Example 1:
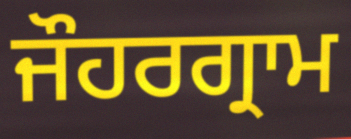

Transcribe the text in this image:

ਜੌਹਰਗ੍ਰਾਮ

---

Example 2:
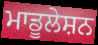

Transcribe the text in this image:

ਮਾਡੂਲੇਸ਼ਨ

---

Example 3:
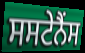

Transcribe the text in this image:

ਸਸਟੇਨੈਂਸ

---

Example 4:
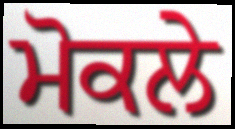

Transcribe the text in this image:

ਮੋਕਲੇ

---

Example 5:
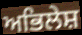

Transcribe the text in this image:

ਅਭਿਲੇਸ਼